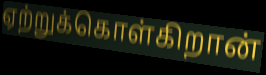
ஏற்றுக்கொள்கிறான்